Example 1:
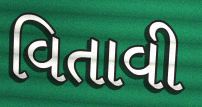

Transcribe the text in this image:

વિતાવી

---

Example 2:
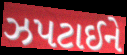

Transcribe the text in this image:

ઝપટાઈને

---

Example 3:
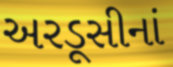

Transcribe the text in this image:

અરડૂસીનાં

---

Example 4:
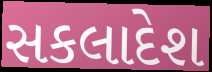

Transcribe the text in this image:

સકલાદેશ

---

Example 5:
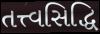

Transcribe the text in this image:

તત્ત્વસિદ્ધિ